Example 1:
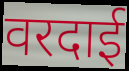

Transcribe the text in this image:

वरदाई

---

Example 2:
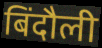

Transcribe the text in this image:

बिंदौली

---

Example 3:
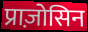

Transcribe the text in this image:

प्राज़ोसिन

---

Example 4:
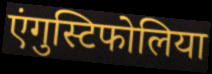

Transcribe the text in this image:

एंगुस्टिफोलिया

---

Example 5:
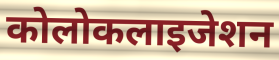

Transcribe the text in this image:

कोलोकलाइजेशन